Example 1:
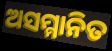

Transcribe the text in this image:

ଅସମ୍ମାନିତ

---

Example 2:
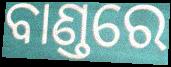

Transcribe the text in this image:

ବାଣ୍ଡରେ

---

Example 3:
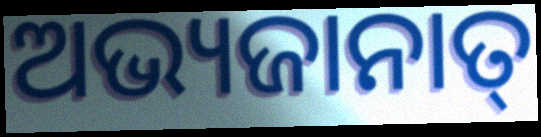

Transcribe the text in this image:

ଅଭ୍ୟଜାନାତ୍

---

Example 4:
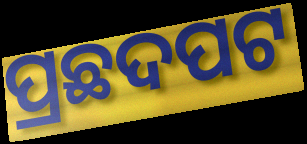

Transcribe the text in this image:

ପ୍ରଛଦପଟ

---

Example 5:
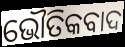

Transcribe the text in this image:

ଭୌତିକବାଦ